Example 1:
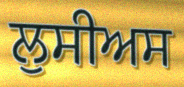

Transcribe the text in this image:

ਲੁਸੀਅਸ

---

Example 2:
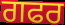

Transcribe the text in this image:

ਗਫਰ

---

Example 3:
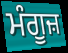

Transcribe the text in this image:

ਮੰਗੂਜ਼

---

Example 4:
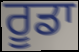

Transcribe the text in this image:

ਰੂਡਾ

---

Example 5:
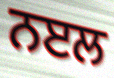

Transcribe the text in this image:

ਨੲਲ